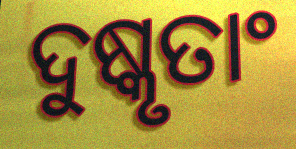
ଦୁଷ୍କୃତାଂ